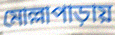
মোল্লাপাড়ায়